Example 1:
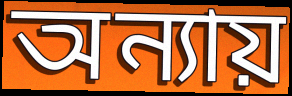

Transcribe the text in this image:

অন্যায়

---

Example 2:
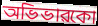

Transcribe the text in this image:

অভিভাৱকো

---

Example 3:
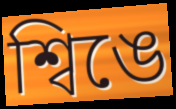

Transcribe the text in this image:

শ্বিঙে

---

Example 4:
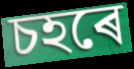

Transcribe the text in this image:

চহৰে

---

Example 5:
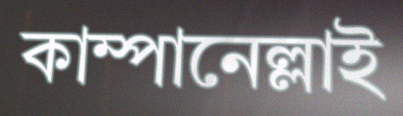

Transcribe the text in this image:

কাম্পানেল্লাই